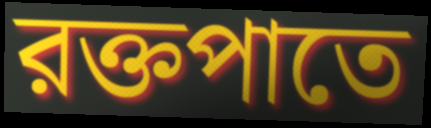
রক্তপাতে